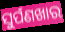
ସୁର୍ପଣଖାର